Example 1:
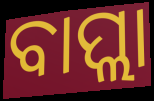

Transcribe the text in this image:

ବାପ୍ଲା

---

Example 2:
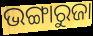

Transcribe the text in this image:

ଭଙ୍ଗାରୁଜା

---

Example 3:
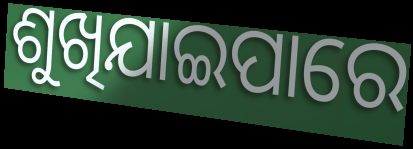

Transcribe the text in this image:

ଶୁଖିଯାଇପାରେ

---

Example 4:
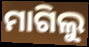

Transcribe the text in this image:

ମାଗିଲୁ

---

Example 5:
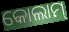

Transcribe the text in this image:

କୋଲାମ୍